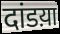
दांडय़ा